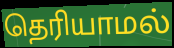
தெரியாமல்